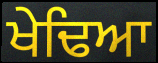
ਖੇਢਿਆ